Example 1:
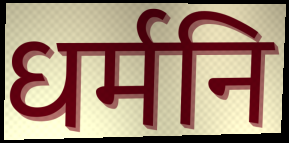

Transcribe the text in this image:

धर्मनि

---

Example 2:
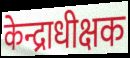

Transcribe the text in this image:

केन्द्राधीक्षक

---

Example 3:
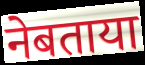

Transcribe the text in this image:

नेबताया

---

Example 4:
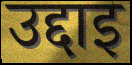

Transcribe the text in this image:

उद्दाइ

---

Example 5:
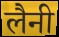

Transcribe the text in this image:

लैनी